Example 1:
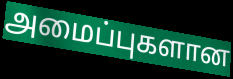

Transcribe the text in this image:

அமைப்புகளான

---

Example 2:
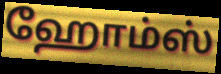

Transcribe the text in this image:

ஹோம்ஸ்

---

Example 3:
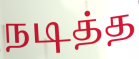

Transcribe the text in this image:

நடித்த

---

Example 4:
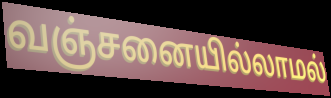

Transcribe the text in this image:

வஞ்சனையில்லாமல்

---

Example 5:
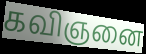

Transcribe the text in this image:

கவிஞனை